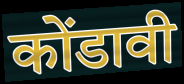
कोंडावी